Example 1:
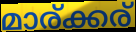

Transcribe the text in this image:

മാര്ക്കര്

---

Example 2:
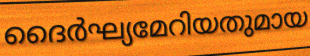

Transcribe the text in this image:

ദൈർഘ്യമേറിയതുമായ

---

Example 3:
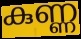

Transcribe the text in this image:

കുണ്ണ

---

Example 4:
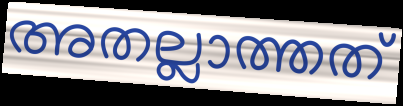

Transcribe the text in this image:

അതല്ലാത്തത്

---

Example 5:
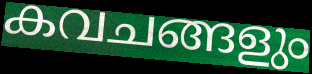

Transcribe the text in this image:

കവചങ്ങളും